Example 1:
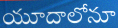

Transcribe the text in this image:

యూదాలోనూ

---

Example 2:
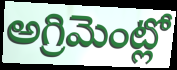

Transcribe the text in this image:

అగ్రిమెంట్లో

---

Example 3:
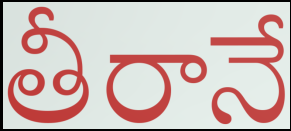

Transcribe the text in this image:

తీరానే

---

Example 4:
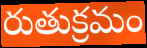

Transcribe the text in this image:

రుతుక్రమం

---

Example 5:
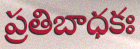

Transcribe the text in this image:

ప్రతిబాధకః